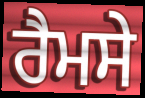
ਰੈਮਸੇ